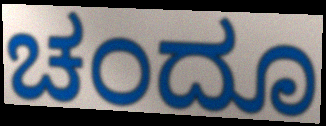
ಚಂದೂ